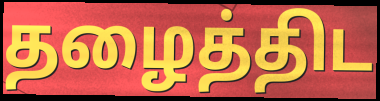
தழைத்திட